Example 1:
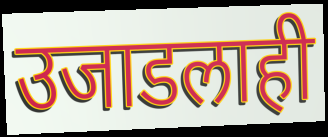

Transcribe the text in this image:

उजाडलाही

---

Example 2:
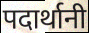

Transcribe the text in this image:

पदार्थानी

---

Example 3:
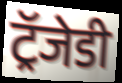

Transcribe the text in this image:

ट्रॅजेडी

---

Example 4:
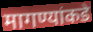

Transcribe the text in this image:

मागण्यांकडे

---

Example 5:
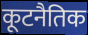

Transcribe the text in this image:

कूटनैतिक